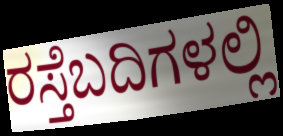
ರಸ್ತೆಬದಿಗಳಲ್ಲಿ